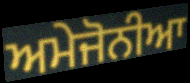
ਅਮੇਜੋਨੀਆ